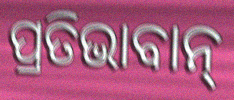
ପ୍ରତିଭାବାନ୍